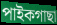
পাইকগাছা